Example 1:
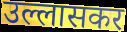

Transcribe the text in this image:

उल्लासकर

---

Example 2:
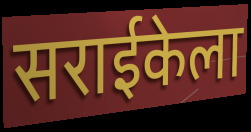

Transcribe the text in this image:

सराईकेला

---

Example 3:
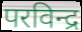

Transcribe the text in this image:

परविन्द्र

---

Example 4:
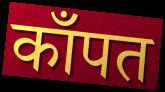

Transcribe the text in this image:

काँपत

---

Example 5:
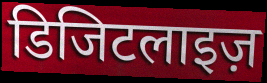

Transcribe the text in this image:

डिजिटलाइज़